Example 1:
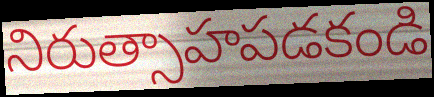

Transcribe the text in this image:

నిరుత్సాహపడకండి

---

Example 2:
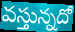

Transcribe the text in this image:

వస్తున్నదో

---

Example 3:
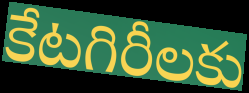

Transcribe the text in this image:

కేటగిరీలకు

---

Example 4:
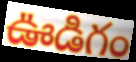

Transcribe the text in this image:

ఊడిగం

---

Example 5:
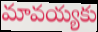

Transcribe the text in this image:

మావయ్యకు